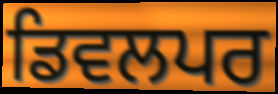
ਡਿਵਲਪਰ